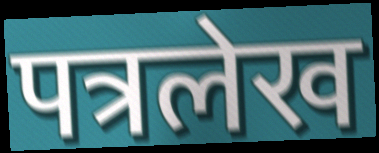
पत्रलेख